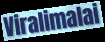
Viralimalai